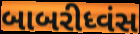
બાબરીધ્વંસ